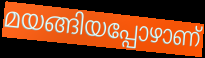
മയങ്ങിയപ്പോഴാണ്